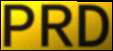
PRD